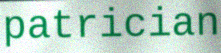
patrician